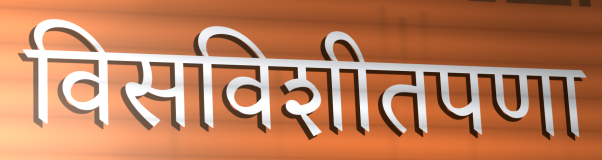
विसविशीतपणा